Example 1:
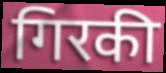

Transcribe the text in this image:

गिरकी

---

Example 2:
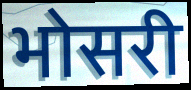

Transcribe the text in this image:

भोसरी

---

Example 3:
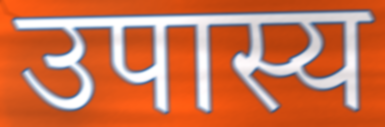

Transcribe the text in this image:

उपास्य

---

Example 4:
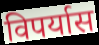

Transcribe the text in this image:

विपर्यास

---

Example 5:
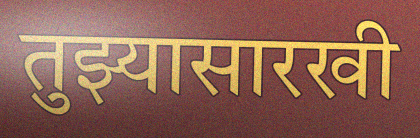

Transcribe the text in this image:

तुझ्यासारखी